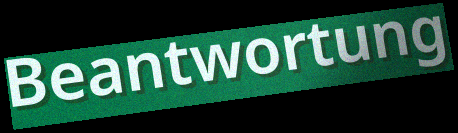
Beantwortung